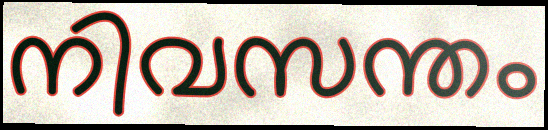
നിവസന്തം